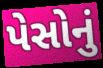
પેસોનું